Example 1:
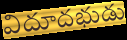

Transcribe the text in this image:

విదూదభుడు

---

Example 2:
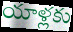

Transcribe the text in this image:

యాళ్లకు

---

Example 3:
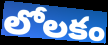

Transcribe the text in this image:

లోలకం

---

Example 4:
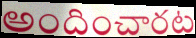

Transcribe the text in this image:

అందించారట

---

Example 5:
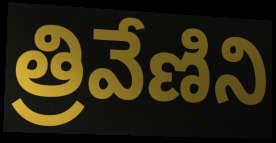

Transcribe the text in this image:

త్రివేణిని